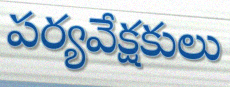
పర్యవేక్షకులు